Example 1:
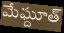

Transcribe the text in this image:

మేఘ్దూత్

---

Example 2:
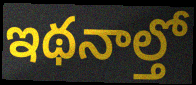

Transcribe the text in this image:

ఇథనాల్తో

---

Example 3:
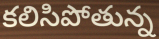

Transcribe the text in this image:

కలిసిపోతున్న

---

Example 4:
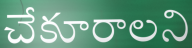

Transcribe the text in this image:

చేకూరాలని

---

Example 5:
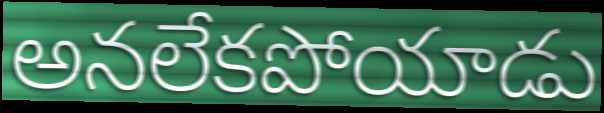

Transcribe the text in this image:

అనలేకపోయాడు